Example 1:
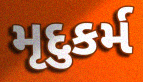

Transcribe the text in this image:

મૃદુકર્મ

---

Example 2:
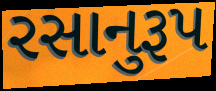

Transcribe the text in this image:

રસાનુરૂપ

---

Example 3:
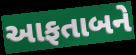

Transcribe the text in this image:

આફતાબને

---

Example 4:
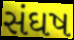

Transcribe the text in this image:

સંઘષ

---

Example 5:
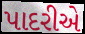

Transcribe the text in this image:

પાદરીએ